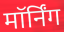
मॉर्निंग